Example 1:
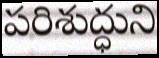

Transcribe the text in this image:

పరిశుద్ధుని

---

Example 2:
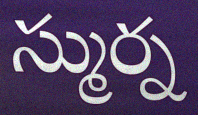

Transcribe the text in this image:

స్ముర్న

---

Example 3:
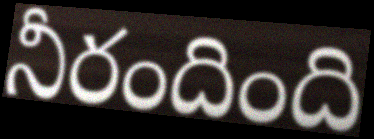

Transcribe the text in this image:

నీరందింది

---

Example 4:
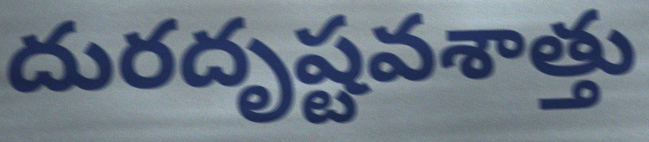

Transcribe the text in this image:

దురదృష్టవశాత్తు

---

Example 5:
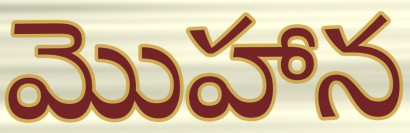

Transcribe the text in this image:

మొహాన